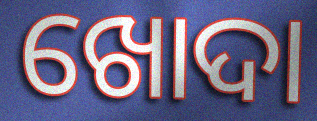
ଖୋଦା